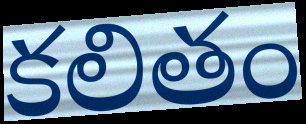
కలితం